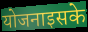
योजनाइसके